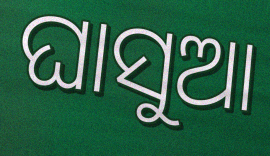
ଘାସୁଆ